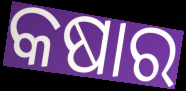
କଷାର